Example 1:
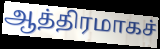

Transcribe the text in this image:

ஆத்திரமாகச்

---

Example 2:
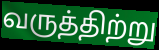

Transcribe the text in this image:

வருத்திற்று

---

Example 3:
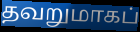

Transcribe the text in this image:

தவறுமாகப்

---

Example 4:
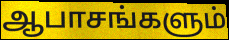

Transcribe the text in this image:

ஆபாசங்களும்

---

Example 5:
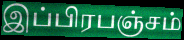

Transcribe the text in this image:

இப்பிரபஞ்சம்